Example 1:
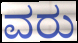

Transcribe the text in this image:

ವರು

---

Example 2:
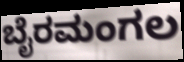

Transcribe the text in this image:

ಬೈರಮಂಗಲ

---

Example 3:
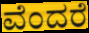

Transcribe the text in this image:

ವೆಂದರೆ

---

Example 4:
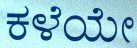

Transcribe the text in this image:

ಕಳೆಯೇ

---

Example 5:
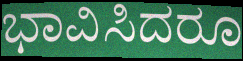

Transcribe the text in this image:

ಭಾವಿಸಿದರೂ